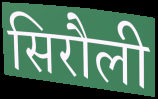
सिरौली